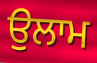
ਉਲਾਮ